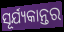
ସୂର୍ଯ୍ୟକାନ୍ତର